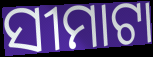
ସୀମାଟା